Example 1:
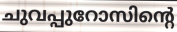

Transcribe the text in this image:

ചുവപ്പുറോസിന്റെ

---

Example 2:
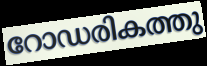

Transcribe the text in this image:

റോഡരികത്തു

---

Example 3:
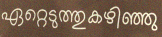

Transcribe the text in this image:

ഏറ്റെടുത്തുകഴിഞ്ഞു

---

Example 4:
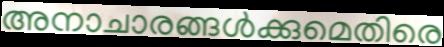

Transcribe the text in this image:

അനാചാരങ്ങൾക്കുമെതിരെ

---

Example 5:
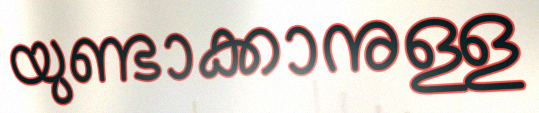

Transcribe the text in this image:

യുണ്ടാക്കാനുള്ള